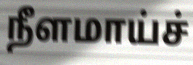
நீளமாய்ச்